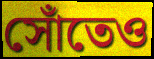
সোঁতেও